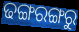
ଢଙ୍ଗରଙ୍ଗରୁ